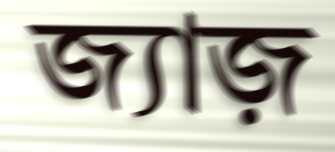
জ্যাজ়